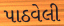
પાઠવેલી